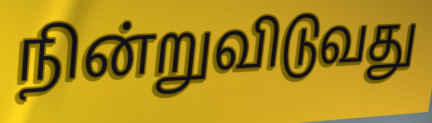
நின்றுவிடுவது